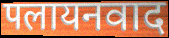
पलायनवाद